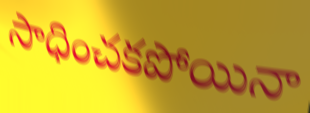
సాధించకపోయినా